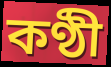
কণ্ঠী